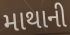
માથાની